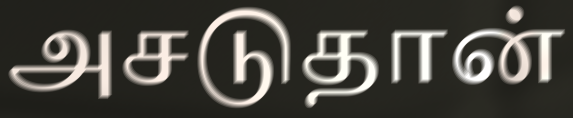
அசடுதான்